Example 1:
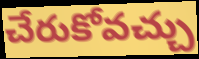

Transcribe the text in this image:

చేరుకోవచ్చు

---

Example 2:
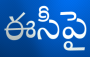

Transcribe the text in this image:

ఈసీపై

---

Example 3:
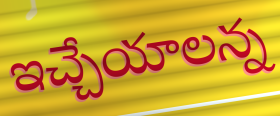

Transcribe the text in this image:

ఇచ్చేయాలన్న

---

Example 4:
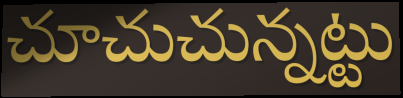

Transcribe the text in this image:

చూచుచున్నట్టు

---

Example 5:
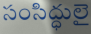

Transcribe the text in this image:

సంసిద్ధులై